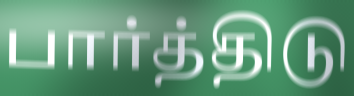
பார்த்திடு